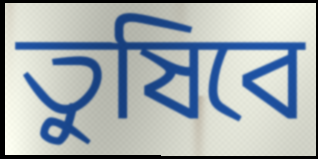
তুষিবে